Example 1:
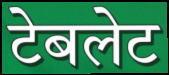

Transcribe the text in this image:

टेबलेट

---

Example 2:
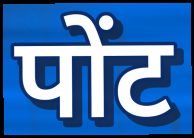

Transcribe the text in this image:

पोंट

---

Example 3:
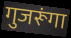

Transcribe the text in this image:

गुजरूंगा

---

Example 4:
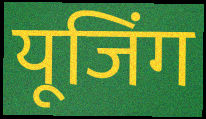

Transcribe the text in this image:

यूजिंग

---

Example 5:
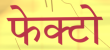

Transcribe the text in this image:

फेक्टो